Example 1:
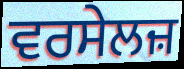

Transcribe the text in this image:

ਵਰਸੇਲਜ਼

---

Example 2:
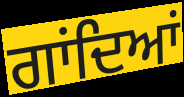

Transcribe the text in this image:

ਗਾਂਦਿਆਂ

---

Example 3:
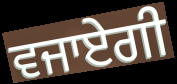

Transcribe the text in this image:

ਵਜਾਏਗੀ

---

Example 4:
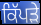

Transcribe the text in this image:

ਕਿੱਪੜੇ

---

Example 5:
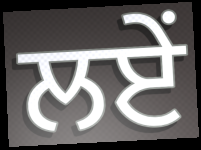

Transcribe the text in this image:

ਲਏਂ